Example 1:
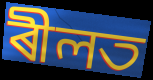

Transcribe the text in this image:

ৰীলত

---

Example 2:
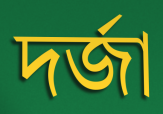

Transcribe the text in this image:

দৰ্জা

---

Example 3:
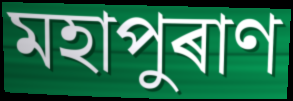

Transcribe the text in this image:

মহাপুৰাণ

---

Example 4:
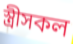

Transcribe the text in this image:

স্ত্ৰীসকল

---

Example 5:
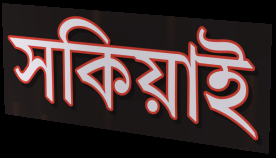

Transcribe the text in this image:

সকিয়াই